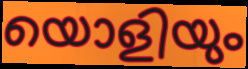
യൊളിയും